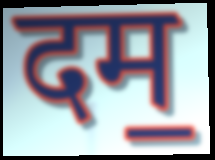
दम॒